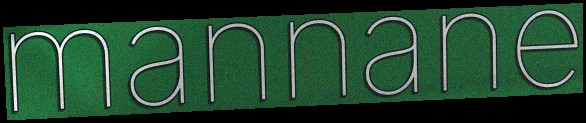
mannane